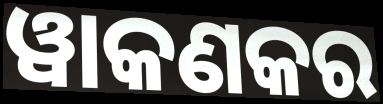
ୱାକଣକର